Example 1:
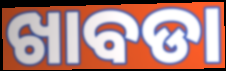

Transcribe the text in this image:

ଖାବଡା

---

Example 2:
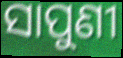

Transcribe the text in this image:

ସାପୁଣୀ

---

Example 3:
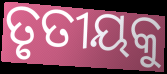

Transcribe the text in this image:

ତୃତୀୟକୁ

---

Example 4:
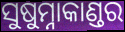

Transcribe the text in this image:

ସୁଷୁମ୍ନାକାଣ୍ଡର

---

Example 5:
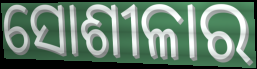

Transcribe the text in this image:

ସୋଶୀଳାର